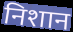
निशान